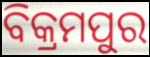
ବିକ୍ରମପୁର